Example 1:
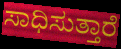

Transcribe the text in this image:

ಸಾಧಿಸುತ್ತಾರೆ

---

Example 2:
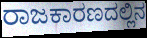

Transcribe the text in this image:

ರಾಜಕಾರಣದಲ್ಲಿನ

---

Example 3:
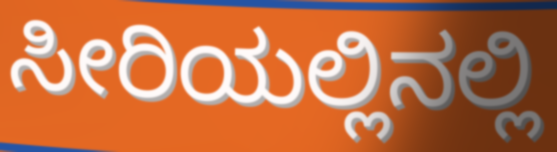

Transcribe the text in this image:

ಸೀರಿಯಲ್ಲಿನಲ್ಲಿ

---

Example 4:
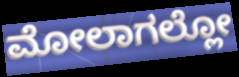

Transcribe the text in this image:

ಮೋಲಾಗಲ್ಲೋ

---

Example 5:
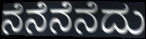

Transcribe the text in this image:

ನೆನೆನೆನೆದು